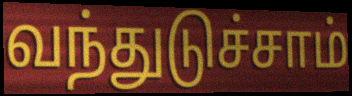
வந்துடுச்சாம்